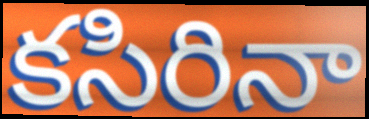
కసిరినా